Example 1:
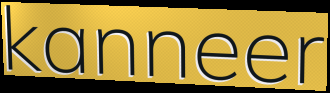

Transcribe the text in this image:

kanneer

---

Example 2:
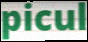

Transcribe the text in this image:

picul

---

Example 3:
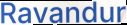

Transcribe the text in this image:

Ravandur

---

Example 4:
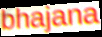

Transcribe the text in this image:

bhajana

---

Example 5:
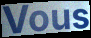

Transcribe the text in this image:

Vous